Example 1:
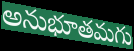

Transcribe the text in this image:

అనుభూతమగు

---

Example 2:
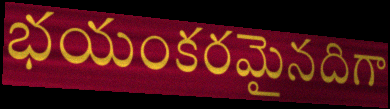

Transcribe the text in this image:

భయంకరమైనదిగా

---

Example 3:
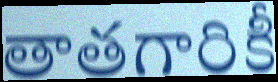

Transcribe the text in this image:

తాతగారికీ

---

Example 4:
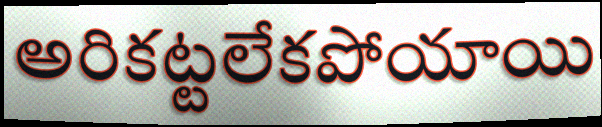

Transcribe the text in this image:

అరికట్టలేకపోయాయి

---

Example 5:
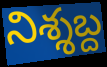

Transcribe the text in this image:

నిశ్శబ్ద